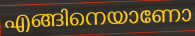
എങ്ങിനെയാണോ